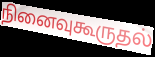
நினைவுகூருதல்